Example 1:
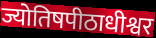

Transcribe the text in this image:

ज्योतिषपीठाधीश्वर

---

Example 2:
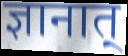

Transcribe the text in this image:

ज्ञानात्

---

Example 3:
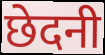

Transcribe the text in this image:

छेदनी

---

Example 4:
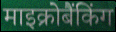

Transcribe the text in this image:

माइक्रोबैंकिंग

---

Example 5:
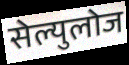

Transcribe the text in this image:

सेल्युलोज